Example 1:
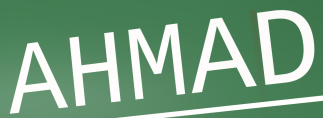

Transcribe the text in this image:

AHMAD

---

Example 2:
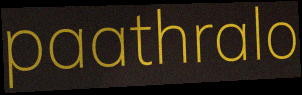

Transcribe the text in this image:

paathralo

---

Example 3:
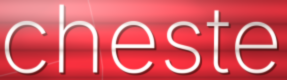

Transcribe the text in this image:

cheste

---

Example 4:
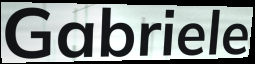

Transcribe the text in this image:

Gabriele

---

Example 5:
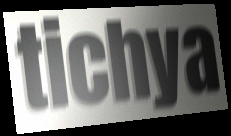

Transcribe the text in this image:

tichya